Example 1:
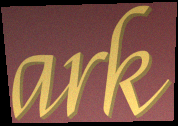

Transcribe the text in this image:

ark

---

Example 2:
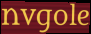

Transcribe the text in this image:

nvgole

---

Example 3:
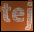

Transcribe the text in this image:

tej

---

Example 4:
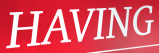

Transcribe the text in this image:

HAVING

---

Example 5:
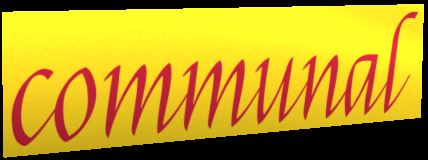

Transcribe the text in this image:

communal